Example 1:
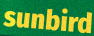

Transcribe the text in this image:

sunbird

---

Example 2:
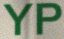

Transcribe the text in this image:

YP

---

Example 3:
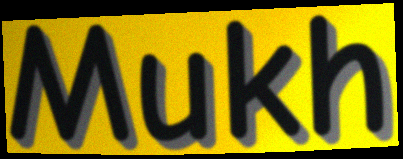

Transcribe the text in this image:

Mukh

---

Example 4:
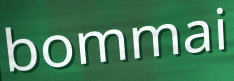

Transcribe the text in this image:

bommai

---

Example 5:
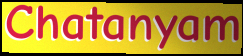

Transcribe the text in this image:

Chatanyam